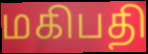
மகிபதி